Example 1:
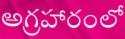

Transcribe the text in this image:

అగ్రహారంలో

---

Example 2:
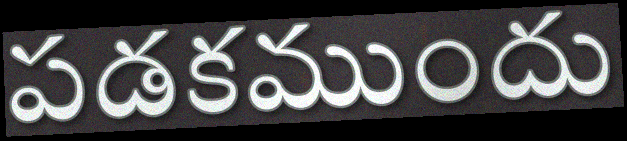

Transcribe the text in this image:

పడకముందు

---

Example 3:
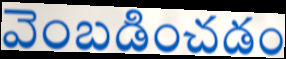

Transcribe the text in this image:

వెంబడించడం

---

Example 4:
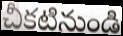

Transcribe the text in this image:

చీకటినుండి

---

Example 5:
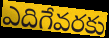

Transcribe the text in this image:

ఎదిగేవరకు